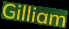
Gilliam